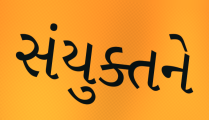
સંયુક્તને